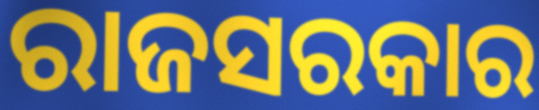
ରାଜସରକାର